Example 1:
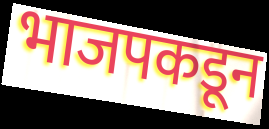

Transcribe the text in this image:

भाजपकडून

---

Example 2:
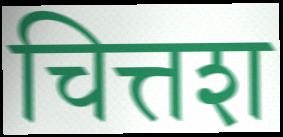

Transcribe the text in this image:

चित्तश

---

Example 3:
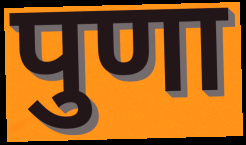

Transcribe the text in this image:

पुणा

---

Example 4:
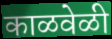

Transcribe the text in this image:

काळवेळी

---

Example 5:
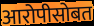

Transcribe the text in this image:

आरोपीसोबत